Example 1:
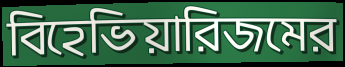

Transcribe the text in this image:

বিহেভিয়ারিজমের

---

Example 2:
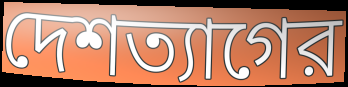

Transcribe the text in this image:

দেশত্যাগের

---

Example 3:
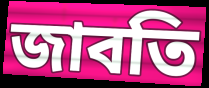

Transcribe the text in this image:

জাবতি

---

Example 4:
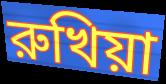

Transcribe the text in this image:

রুখিয়া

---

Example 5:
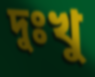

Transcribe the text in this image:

দুঃখু